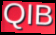
QIB